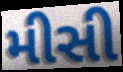
મીસી